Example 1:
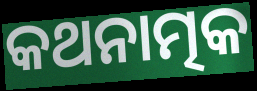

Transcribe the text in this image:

କଥନାତ୍ମକ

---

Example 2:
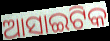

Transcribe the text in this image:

ଆସାଇଟିକ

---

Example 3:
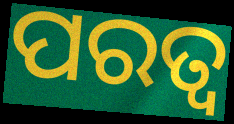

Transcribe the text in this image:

ପରତ୍ୱ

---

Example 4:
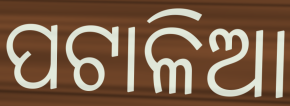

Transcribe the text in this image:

ପଟାଳିଆ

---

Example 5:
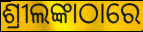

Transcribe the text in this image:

ଶ୍ରୀଲଙ୍କାଠାରେ